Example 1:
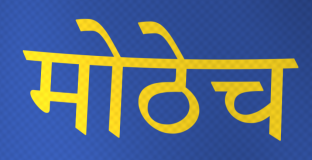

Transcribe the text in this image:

मोठेच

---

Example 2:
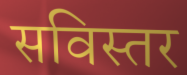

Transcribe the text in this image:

सविस्तर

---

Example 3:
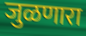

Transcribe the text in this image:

जुळणारा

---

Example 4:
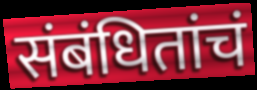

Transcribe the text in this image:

संबंधितांचं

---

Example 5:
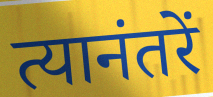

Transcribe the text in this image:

त्यानंतरें